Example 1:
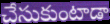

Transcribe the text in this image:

చేసుకుంటాడా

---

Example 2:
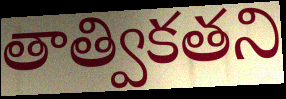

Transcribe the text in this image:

తాత్వికతని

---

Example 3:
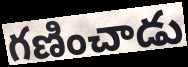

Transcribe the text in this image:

గణించాడు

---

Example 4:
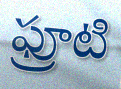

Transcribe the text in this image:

ఫ్రూటి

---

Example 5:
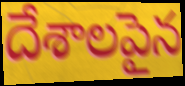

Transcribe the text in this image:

దేశాలపైన